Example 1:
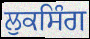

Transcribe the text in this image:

ਲੁਕਸਿੰਗ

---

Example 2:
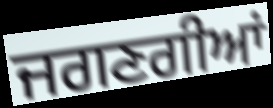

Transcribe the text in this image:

ਜਗਣਗੀਆਂ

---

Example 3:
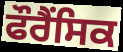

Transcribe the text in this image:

ਫੌਰੈਂਸਿਕ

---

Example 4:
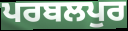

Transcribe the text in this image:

ਪਰਬਲਪੁਰ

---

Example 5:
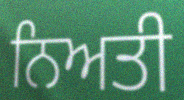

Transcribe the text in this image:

ਨਿਅਤੀ